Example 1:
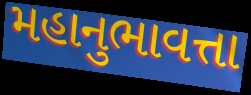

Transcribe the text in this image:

મહાનુભાવત્તા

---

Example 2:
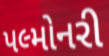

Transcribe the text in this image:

પલ્મોનરી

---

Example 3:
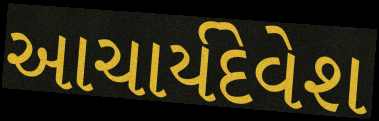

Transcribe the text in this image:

આચાર્યદેવેશ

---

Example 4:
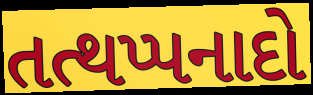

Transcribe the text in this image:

તત્થપ્પનાદો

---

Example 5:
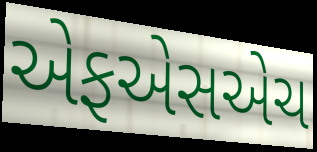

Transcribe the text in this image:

એફએસએચ